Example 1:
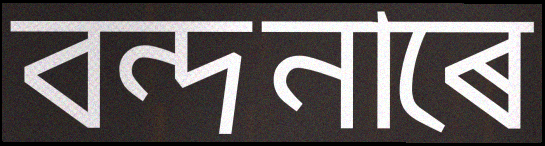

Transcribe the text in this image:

বন্দনাৰে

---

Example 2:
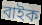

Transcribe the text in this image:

বাইক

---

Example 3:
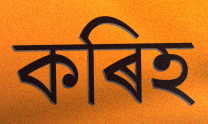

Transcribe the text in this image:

কৰিহ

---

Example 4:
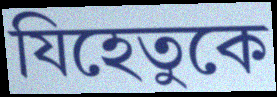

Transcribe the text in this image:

যিহেতুকে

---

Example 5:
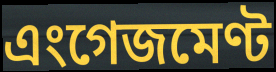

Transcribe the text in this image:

এংগেজমেণ্ট